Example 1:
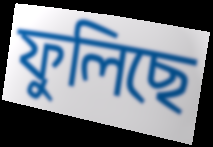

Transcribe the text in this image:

ফুলিছে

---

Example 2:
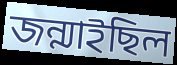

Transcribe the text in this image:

জন্মাইছিল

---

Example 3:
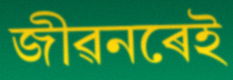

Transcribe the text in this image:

জীৱনৰেই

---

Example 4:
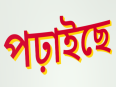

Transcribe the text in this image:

পঢ়াইছে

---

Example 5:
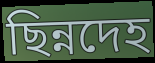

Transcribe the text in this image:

ছিন্নদেহ